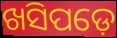
ଖସିପଡ଼େ